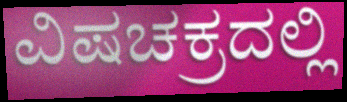
ವಿಷಚಕ್ರದಲ್ಲಿ